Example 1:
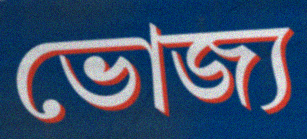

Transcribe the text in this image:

ভোজ্য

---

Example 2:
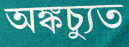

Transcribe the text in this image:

অঙ্কচ্যুত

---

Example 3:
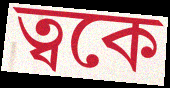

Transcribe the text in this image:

ত্বকে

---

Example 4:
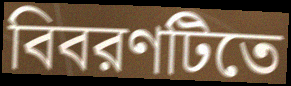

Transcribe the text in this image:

বিবরণটিতে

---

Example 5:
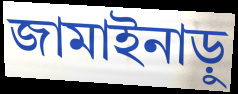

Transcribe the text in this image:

জামাইনাড়ু